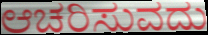
ಆಚರಿಸುವದು